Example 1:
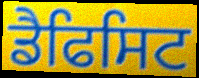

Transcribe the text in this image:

ਡੈਫਿਸਿਟ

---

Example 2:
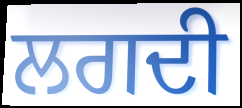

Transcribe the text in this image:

ਲਗਦੀ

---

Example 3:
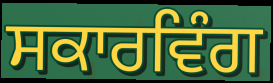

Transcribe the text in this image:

ਸਕਾਰਵਿੰਗ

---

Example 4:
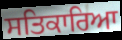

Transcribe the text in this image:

ਸਤਿਕਾਰਿਆ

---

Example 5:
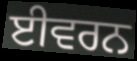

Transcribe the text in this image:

ਈਵਰਨ